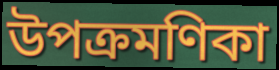
উপক্রমণিকা